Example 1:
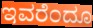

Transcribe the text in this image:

ಇವರೆಂದೂ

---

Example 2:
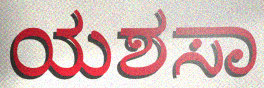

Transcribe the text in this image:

ಯಶಸಾ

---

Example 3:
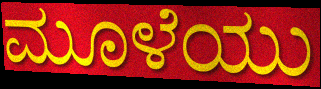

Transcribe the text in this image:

ಮೂಳೆಯು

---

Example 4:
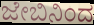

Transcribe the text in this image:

ಜೇಬಿನಿಂದ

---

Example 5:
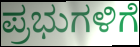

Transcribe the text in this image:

ಪ್ರಭುಗಳಿಗೆ